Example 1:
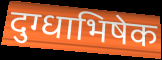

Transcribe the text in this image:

दुग्धाभिषेक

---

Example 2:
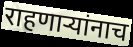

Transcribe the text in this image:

राहणाऱ्यांनाच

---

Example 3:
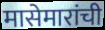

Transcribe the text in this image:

मासेमारांची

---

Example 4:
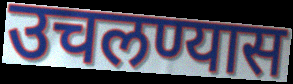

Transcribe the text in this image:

उचलण्यास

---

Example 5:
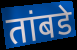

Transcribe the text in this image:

तांबडे